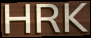
HRK